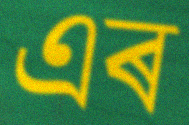
এৰ